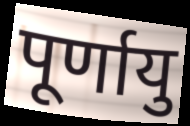
पूर्णायु